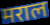
मराल